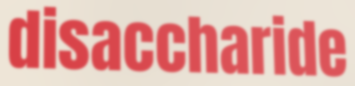
disaccharide